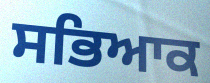
ਸਭਿਆਕ